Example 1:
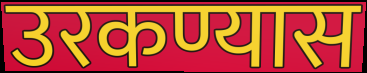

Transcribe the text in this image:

उरकण्यास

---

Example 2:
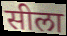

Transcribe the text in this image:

सीला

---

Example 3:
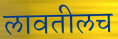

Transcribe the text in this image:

लावतीलच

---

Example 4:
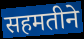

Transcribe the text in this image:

सहमतीने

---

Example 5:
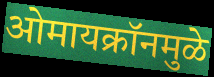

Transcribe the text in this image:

ओमायक्रॉनमुळे